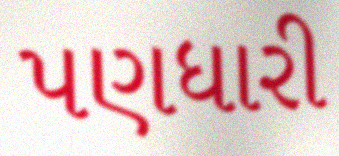
પણધારી